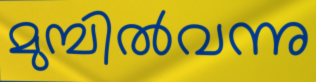
മുമ്പിൽവന്നു